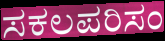
ಸಕಲಪರಿಸಂ